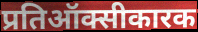
प्रतिऑक्सीकारक